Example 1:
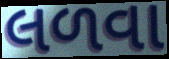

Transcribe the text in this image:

લળવા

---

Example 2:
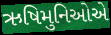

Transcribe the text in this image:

ઋષિમુનિઓએ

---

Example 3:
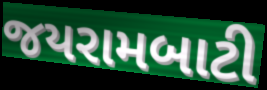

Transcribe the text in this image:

જયરામબાટી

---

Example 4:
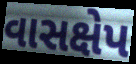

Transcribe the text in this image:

વાસક્ષેપ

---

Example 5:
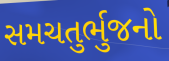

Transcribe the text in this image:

સમચતુર્ભુજનો